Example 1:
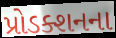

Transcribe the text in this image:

પ્રોડક્શનના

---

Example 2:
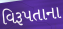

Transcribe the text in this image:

વિરૂપતાના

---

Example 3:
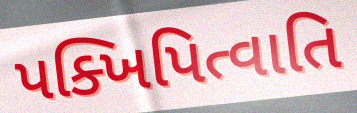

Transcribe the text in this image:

પક્ખિપિત્વાતિ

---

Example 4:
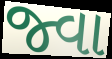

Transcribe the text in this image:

જ્વા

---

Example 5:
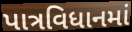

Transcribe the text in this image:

પાત્રવિધાનમાં